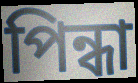
পিন্ধা